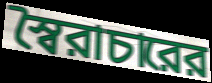
স্বৈরাচারের